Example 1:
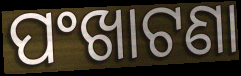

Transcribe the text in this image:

ପଂଖାଟଣା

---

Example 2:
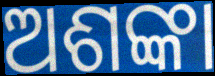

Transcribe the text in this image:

ଅଶଙ୍କା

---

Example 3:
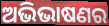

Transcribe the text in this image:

ଅଭିଭାଷଣର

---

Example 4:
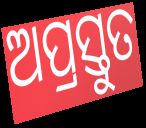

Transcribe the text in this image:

ଅପ୍ରସ୍ତୁତ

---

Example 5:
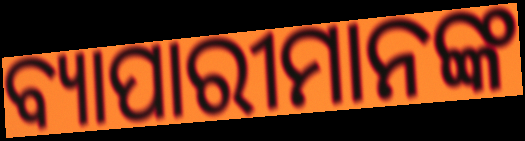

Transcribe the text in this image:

ବ୍ୟାପାରୀମାନଙ୍କ